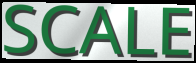
SCALE